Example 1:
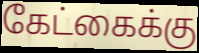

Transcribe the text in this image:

கேட்கைக்கு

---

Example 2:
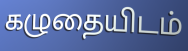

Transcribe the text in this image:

கழுதையிடம்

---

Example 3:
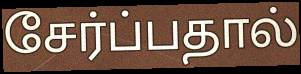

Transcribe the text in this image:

சேர்ப்பதால்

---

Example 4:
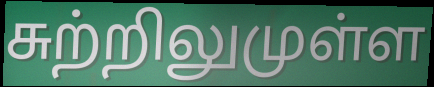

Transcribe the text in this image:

சுற்றிலுமுள்ள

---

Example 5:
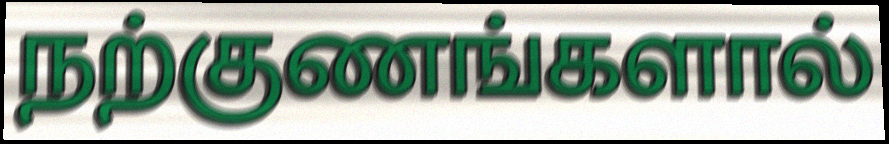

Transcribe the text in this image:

நற்குணங்களால்